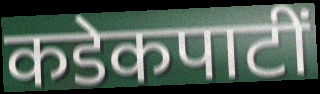
कडेकपाटीं